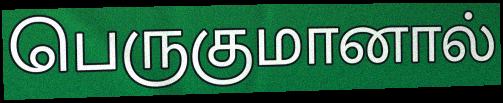
பெருகுமானால்